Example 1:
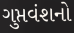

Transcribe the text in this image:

ગુપ્તવંશનો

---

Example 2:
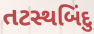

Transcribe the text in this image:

તટસ્થબિંદુ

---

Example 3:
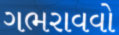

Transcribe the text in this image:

ગભરાવવો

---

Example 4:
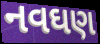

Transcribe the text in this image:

નવઘણ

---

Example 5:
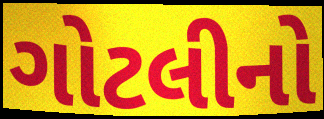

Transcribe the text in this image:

ગોટલીનો